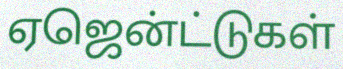
ஏஜென்ட்டுகள்